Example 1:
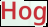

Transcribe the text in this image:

Hog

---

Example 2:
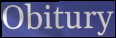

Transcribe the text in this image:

Obitury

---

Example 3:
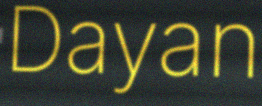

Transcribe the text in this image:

Dayan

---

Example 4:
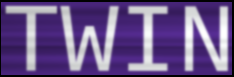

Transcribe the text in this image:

TWIN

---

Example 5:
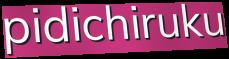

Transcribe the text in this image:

pidichiruku